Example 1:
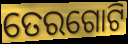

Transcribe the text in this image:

ତେରଗୋଟି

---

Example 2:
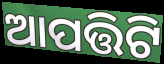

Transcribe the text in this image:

ଆପତ୍ତିଟି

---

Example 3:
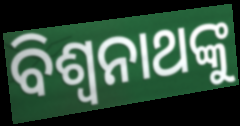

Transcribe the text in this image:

ବିଶ୍ବନାଥଙ୍କୁ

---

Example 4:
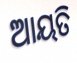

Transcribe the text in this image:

ଆୟତି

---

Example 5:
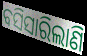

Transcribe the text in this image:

ବସିସାରିଲାଣି